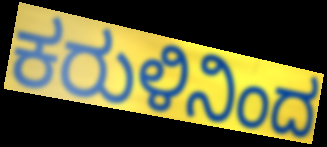
ಕರುಳಿನಿಂದ